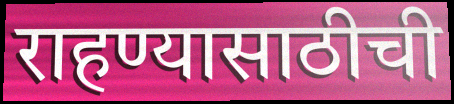
राहण्यासाठीची